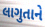
લાગુતાને